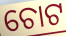
ଚୋଟ